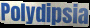
Polydipsia